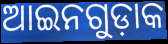
ଆଇନଗୁଡ଼ାକ